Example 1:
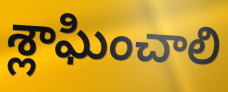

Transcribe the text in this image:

శ్లాఘించాలి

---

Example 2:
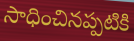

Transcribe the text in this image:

సాధించినప్పటికి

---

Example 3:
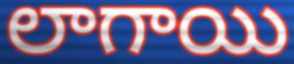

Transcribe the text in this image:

లాగాయి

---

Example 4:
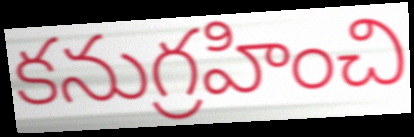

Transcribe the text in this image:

కనుగ్రహించి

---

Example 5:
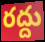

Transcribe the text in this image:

రద్దు